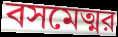
বসমেত্মর